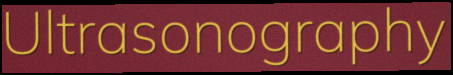
Ultrasonography